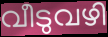
വീടുവഴി